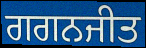
ਗਗਨਜੀਤ